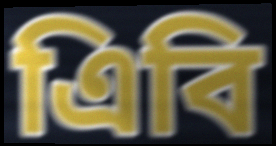
এিবি